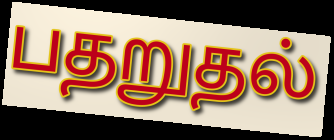
பதறுதல்